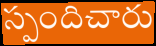
స్పందిచారు